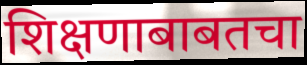
शिक्षणाबाबतचा